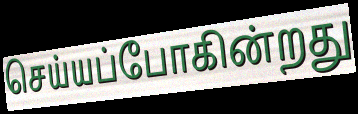
செய்யப்போகின்றது